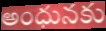
అంధునకు